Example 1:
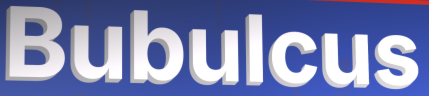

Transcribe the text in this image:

Bubulcus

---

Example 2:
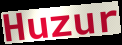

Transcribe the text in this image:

Huzur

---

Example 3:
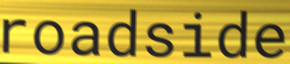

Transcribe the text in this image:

roadside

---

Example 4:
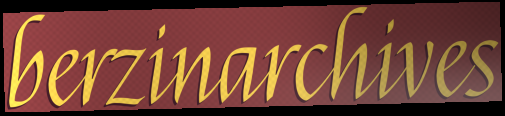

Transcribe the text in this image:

berzinarchives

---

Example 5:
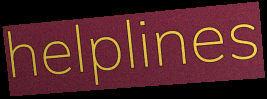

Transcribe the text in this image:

helplines